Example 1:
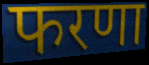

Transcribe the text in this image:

फरणा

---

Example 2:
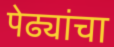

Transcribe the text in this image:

पेढ्यांचा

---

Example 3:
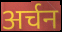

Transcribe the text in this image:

अर्चन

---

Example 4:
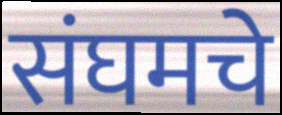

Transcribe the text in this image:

संघमचे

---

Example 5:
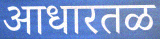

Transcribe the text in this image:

आधारतळ